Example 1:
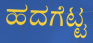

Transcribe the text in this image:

ಹದಗೆಟ್ಟ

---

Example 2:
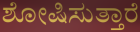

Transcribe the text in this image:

ಶೋಷಿಸುತ್ತಾರೆ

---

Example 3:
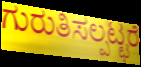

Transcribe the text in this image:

ಗುರುತಿಸಲ್ಪಟ್ಟರೆ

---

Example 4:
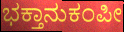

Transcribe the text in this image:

ಭಕ್ತಾನುಕಂಪೀ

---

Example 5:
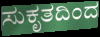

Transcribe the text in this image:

ಸುಕೃತದಿಂದ